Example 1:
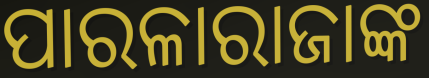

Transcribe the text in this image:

ପାରଳାରାଜାଙ୍କ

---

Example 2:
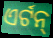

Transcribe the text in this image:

ଏର୍ଟନ୍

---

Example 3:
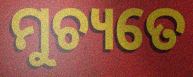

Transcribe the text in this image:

ମୁଚ୍ୟତେ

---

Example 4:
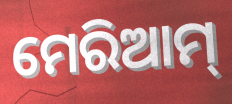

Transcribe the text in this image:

ମେରିଆମ୍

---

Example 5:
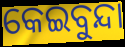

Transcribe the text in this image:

କେଇବୁନ୍ଦା